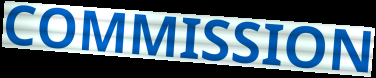
COMMISSION